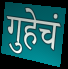
गुहेचं